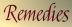
Remedies